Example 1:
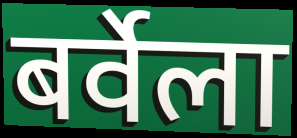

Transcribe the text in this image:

बर्वेला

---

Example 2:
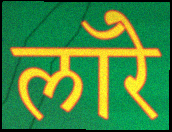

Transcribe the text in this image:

लॉरे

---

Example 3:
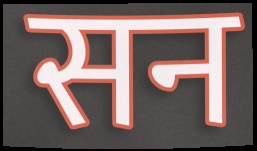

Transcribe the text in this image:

सन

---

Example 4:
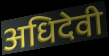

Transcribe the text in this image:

अधिदेवी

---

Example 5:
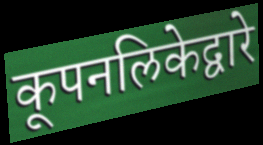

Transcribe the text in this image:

कूपनलिकेद्वारे